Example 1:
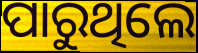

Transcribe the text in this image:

ପାରୁଥିଲେ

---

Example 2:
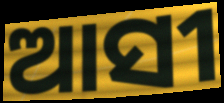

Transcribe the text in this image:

ଆସୀ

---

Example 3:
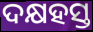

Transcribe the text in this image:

ଦକ୍ଷହସ୍ତ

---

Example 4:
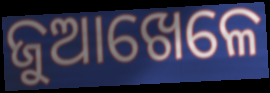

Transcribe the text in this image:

ଜୁଆଖେଳେ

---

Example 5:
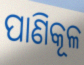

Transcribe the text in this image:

ପାଣିକୂଳ